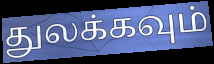
துலக்கவும்